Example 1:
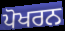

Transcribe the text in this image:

ਪੋਖਰਨ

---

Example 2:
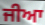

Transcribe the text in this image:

ਜੀਆ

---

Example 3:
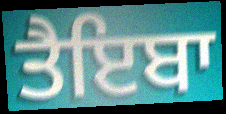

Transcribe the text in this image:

ਤੈਇਬਾ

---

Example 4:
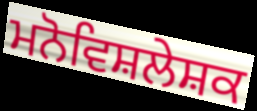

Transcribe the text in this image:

ਮਨੋਵਿਸ਼ਲੇਸ਼ਕ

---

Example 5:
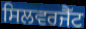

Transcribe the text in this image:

ਸਿਲਵਰਜੈੱਟ